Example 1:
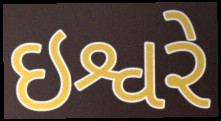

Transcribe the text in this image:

ઇશ્વરે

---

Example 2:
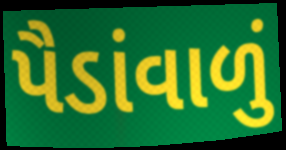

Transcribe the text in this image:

પૈડાંવાળું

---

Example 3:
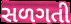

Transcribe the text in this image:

સળગતી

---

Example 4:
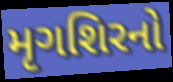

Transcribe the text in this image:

મૃગશિરનો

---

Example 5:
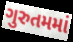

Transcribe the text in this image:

ગુરુતમમાં